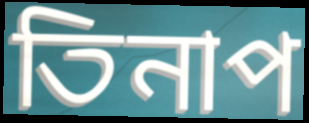
তিনাপ